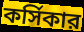
কর্সিকার